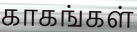
காகங்கள்